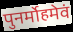
पुनर्मोहमेवं